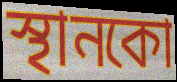
স্থানকো